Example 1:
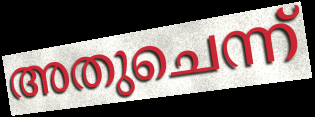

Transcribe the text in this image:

അതുചെന്ന്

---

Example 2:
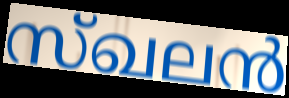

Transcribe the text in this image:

സ്ഖലൻ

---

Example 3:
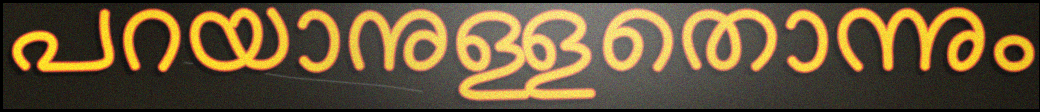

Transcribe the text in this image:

പറയാനുള്ളതൊന്നും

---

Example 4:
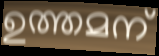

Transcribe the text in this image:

ഉത്തമന്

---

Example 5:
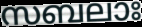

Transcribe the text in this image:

സബലാഃ